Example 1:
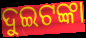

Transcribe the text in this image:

ଦୁଇଟଙ୍କା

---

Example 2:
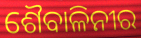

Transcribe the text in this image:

ଶୈବାଳିନୀର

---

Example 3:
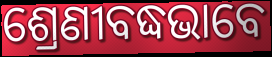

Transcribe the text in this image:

ଶ୍ରେଣୀବଦ୍ଧଭାବେ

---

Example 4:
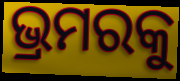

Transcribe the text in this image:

ଭ୍ରମରକୁ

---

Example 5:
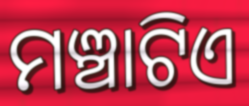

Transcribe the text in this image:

ମଞ୍ଚାଟିଏ